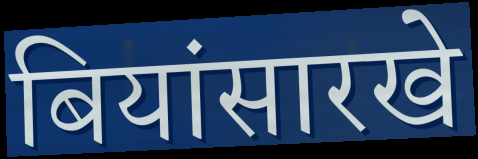
बियांसारखे